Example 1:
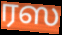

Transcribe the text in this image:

ரஸ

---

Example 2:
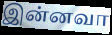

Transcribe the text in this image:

இன்னவா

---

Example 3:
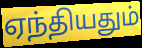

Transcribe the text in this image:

ஏந்தியதும்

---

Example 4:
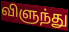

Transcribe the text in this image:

விளுந்து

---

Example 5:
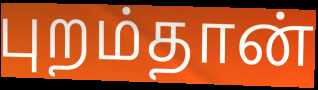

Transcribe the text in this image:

புறம்தான்